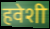
हवेशी